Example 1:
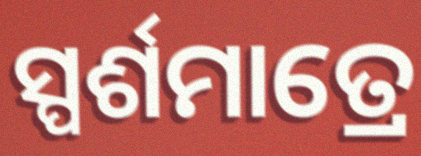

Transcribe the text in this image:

ସ୍ପର୍ଶମାତ୍ରେ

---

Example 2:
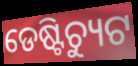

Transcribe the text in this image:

ଡେଷ୍ଟିଚ୍ୟୁଟ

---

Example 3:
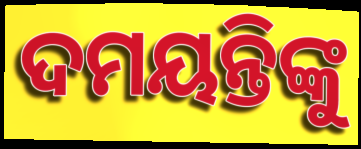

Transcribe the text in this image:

ଦମୟନ୍ତିଙ୍କୁ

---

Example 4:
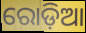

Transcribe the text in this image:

ରୋଡ଼ିଆ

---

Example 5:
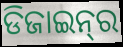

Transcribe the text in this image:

ଡିଜାଇନ୍‌ର